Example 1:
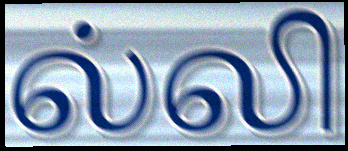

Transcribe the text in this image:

ல்லி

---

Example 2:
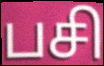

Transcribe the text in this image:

பசி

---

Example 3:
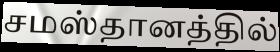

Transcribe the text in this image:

சமஸ்தானத்தில்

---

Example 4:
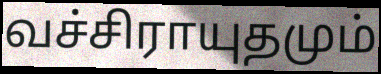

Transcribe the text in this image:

வச்சிராயுதமும்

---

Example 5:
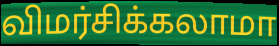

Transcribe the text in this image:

விமர்சிக்கலாமா